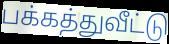
பக்கத்துவீட்டு